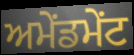
ਅਮੇਂਡਮੇਂਟ